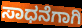
ಸಾಧನೆಗಾಗಿ